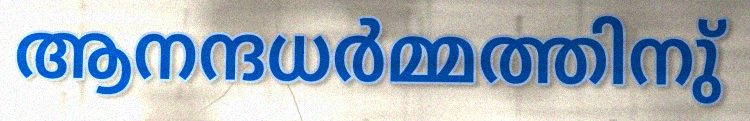
ആനന്ദധർമ്മത്തിനു്